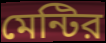
মেন্টির